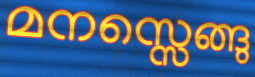
മനസ്സെങ്ങു